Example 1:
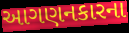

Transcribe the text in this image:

આગણનકારના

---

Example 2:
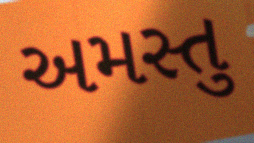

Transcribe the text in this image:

અમસ્તુ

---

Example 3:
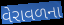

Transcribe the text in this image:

વેરાવળના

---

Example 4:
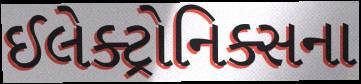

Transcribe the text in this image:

ઈલેક્ટ્રોનિક્સના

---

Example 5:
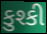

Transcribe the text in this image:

કુશ્કી